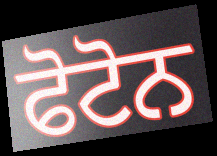
ਫੋਟੋਨ